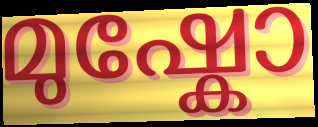
മുഷ്കോ